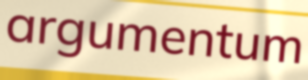
argumentum